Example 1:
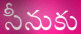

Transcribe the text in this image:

సీనుకు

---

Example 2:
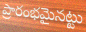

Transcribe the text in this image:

ప్రారంభమైనట్టు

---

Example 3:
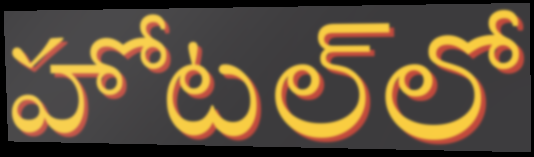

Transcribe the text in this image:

హోటల్‌లో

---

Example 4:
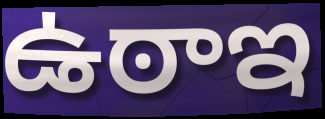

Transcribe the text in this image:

ఉఠాఇ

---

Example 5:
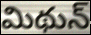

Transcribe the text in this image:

మిథున్